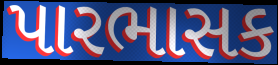
પારભાસક